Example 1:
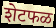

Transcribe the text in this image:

शेटफळ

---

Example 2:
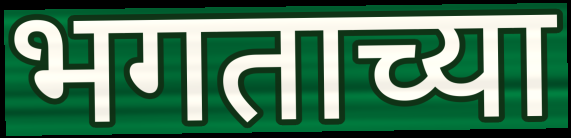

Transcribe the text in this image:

भगताच्या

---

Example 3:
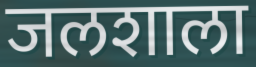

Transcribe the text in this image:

जलशाला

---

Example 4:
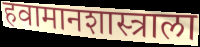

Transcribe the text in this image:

हवामानशास्त्राला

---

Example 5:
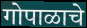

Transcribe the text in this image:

गोपाळाचे